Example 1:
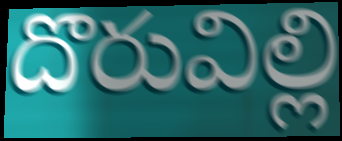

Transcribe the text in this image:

దొరువిల్లి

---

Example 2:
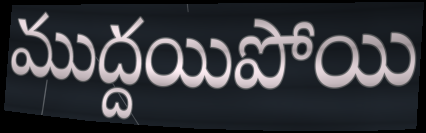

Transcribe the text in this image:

ముద్దయిపోయి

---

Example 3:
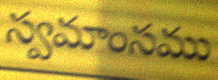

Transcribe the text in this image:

స్వమాంసము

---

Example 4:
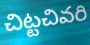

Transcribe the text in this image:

చిట్టచివరి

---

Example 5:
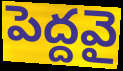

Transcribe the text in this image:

పెద్దవై